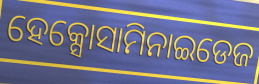
ହେକ୍ସୋସାମିନାଇଡେଜ